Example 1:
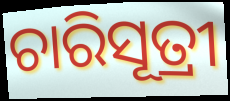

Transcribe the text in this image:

ଚାରିସୂତ୍ରୀ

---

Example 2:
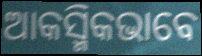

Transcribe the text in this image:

ଆକସ୍ମିକଭାବେ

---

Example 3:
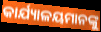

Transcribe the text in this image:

କାର୍ଯ୍ୟାଳୟମାନଙ୍କୁ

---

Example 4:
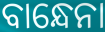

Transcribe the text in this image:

ବାନ୍ଧେନା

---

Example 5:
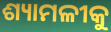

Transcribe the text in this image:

ଶ୍ୟାମଳୀକୁ